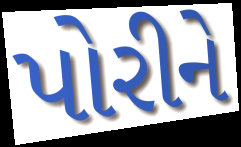
પોરીને